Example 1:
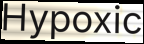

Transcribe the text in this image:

Hypoxic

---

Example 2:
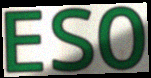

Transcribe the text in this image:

ESO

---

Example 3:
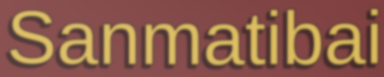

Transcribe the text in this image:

Sanmatibai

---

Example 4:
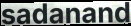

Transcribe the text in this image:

sadanand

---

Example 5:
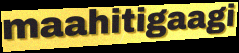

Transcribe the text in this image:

maahitigaagi